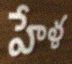
హేళ